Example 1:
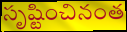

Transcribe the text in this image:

సృష్టించినంత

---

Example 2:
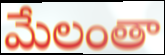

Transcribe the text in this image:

మేలంతా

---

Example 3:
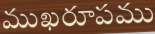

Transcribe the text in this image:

ముఖరూపము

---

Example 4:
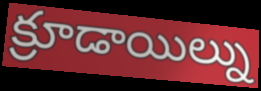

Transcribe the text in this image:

క్రూడాయిల్ను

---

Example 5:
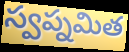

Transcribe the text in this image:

స్వప్నమిత